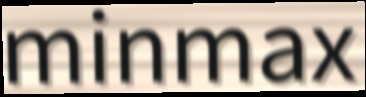
minmax